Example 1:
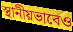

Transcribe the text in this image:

স্থানীয়ভাবেও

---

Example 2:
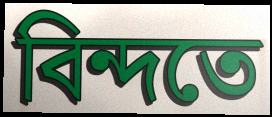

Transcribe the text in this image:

বিন্দতে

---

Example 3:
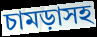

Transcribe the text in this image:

চামড়াসহ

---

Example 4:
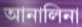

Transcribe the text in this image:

আনালিনা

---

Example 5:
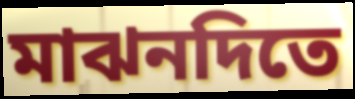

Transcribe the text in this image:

মাঝনদিতে